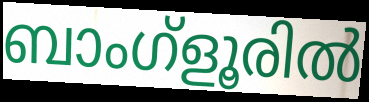
ബാംഗ്ളൂരിൽ